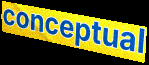
conceptual